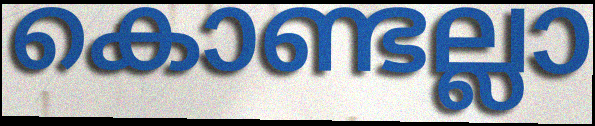
കൊണ്ടല്ലാ